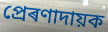
প্ৰেৰণাদায়ক